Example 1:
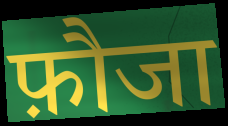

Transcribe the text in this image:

फ़ौजा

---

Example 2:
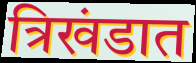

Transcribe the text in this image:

त्रिखंडात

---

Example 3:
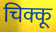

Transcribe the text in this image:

चिक्कू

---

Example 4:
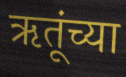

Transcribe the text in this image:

ऋतूंच्या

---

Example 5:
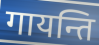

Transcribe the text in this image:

गायन्ति